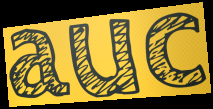
auc